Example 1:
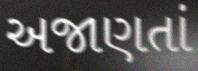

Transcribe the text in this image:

અજાણતાં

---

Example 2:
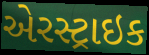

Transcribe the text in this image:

એરસ્ટ્રાઇક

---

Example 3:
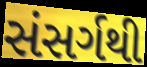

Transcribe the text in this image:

સંસર્ગથી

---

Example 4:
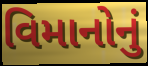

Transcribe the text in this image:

વિમાનોનું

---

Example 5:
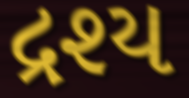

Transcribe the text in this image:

દ્રશ્ય